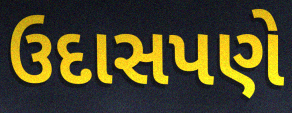
ઉદાસપણે